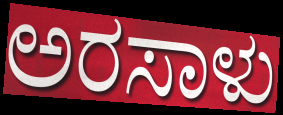
ಅರಸಾಳು